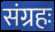
संग्रहः